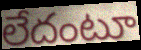
లేదంటూ